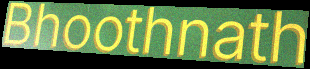
Bhoothnath